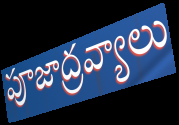
పూజాద్రవ్యాలు